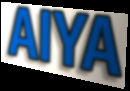
AIYA